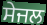
ਸੇਜਲ